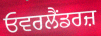
ਓਵਰਲੈਂਡਰਜ਼